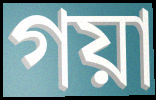
গয়া